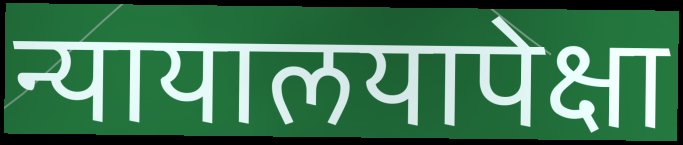
न्यायालयापेक्षा